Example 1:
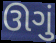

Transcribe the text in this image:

ઊગું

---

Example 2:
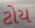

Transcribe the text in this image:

ટોય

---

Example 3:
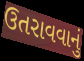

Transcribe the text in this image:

ઉતરાવવાનું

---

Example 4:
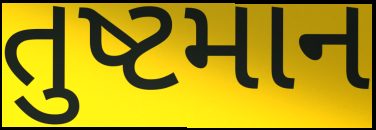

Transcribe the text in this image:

તુષ્ટમાન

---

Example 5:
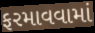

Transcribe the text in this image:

ફરમાવવામાં